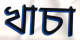
খাচা